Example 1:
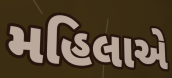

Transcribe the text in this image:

મહિલાએ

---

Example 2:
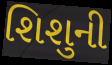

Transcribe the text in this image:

શિશુની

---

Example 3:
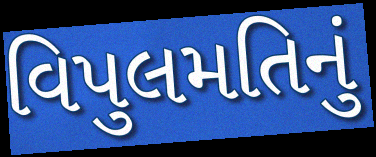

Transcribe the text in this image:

વિપુલમતિનું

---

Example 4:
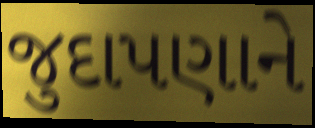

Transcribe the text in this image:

જુદાપણાને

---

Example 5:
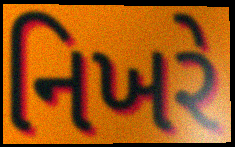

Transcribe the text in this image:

નિખરે